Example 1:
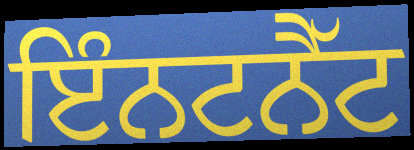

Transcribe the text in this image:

ਇੰਨਟਨੈੱਟ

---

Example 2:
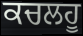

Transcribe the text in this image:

ਕਚਲਹੂ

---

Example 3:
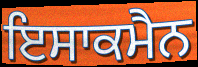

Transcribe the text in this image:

ਇਸਾਕਮੈਨ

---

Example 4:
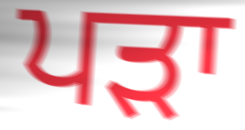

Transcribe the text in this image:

ਪੜਾ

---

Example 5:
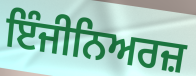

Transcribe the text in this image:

ਇੰਜੀਨਿਅਰਜ਼